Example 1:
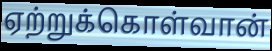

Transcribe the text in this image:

ஏற்றுக்கொள்வான்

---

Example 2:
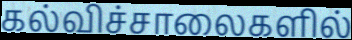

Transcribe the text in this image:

கல்விச்சாலைகளில்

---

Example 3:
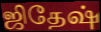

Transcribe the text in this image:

ஜிதேஷ்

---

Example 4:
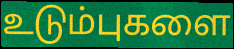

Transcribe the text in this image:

உடும்புகளை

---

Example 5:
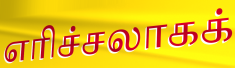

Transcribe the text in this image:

எரிச்சலாகக்